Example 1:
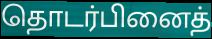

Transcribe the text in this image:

தொடர்பினைத்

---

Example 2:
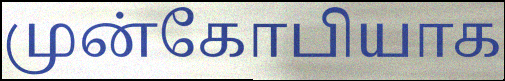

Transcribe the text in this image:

முன்கோபியாக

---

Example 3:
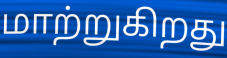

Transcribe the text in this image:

மாற்றுகிறது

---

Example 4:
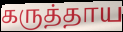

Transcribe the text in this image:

கருத்தாய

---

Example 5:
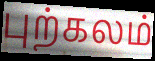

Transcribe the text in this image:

புற்கலம்